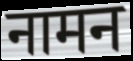
नामन